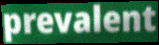
prevalent